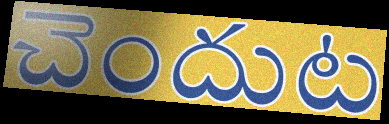
చెందుట